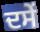
ਦਸੇਂ